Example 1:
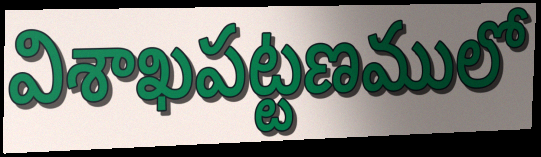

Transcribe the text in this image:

విశాఖపట్టణములో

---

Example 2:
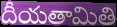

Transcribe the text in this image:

దీయతామితి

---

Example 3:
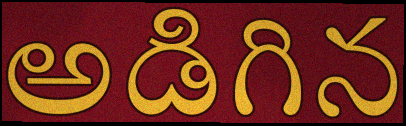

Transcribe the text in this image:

అడిగిన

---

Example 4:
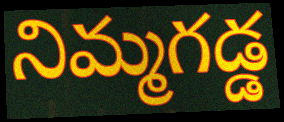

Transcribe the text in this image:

నిమ్మగడ్డ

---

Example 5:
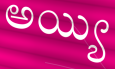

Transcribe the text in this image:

అయ్యి